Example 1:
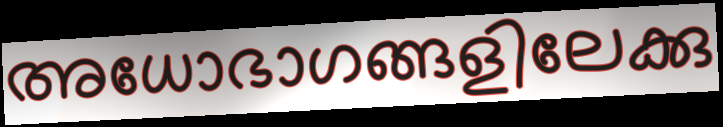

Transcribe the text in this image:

അധോഭാഗങ്ങളിലേക്കു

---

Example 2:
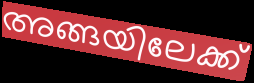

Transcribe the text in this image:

അങ്ങയിലേക്ക്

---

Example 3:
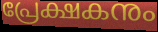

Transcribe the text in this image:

പ്രേക്ഷകനും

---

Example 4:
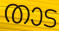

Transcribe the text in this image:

താട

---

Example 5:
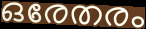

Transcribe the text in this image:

ഒരേതരം